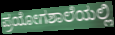
ಪ್ರಯೋಗಶಾಲೆಯಲ್ಲಿ